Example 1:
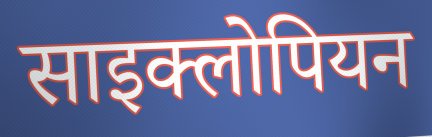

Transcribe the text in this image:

साइक्लोपियन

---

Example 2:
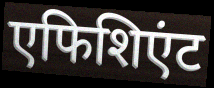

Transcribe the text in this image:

एफिशिएंट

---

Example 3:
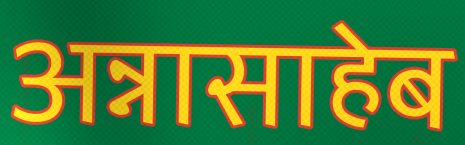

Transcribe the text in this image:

अन्नासाहेब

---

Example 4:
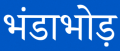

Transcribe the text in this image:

भंडाभोड़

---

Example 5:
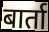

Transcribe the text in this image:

बार्ता